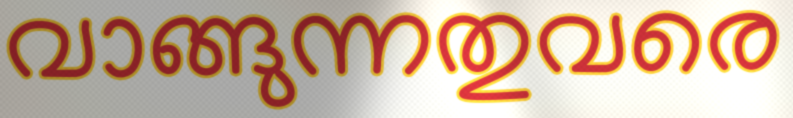
വാങ്ങുന്നതുവരെ